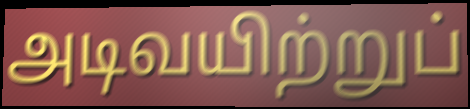
அடிவயிற்றுப்